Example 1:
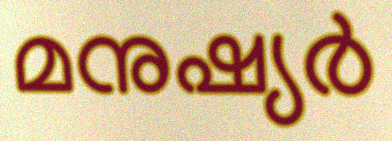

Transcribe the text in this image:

മനുഷ്യർ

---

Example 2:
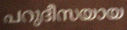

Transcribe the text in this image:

പറുദീസയായ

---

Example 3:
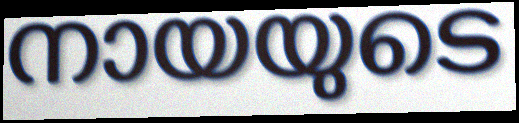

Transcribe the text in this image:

നായയുടെ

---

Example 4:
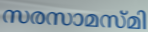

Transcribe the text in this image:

സരസാമസ്മി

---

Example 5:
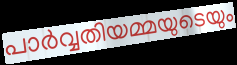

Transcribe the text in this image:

പാർവ്വതിയമ്മയുടെയും